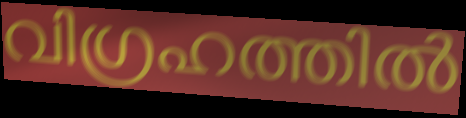
വിഗ്രഹത്തിൽ